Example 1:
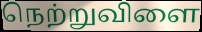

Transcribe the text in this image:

நெற்றுவிளை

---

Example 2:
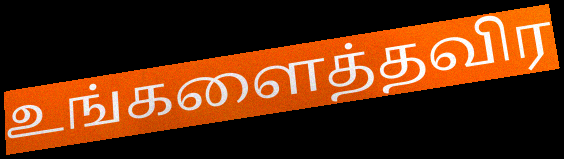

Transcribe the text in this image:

உங்களைத்தவிர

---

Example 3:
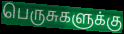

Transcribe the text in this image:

பெருசுகளுக்கு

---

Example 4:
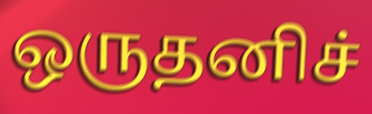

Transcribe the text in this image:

ஒருதனிச்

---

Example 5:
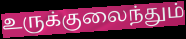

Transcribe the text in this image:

உருக்குலைந்தும்